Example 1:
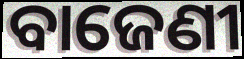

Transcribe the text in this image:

ବାଜେଣୀ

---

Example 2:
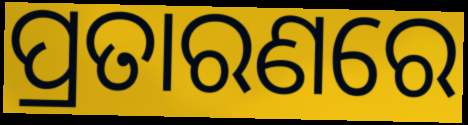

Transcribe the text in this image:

ପ୍ରତାରଣରେ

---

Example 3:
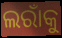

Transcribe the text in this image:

ଲରାଁକୁ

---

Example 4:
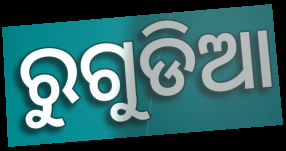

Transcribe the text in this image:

ରୁଗୁଡିଆ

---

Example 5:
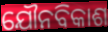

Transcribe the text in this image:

ଯୌନବିକାଶ